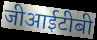
जीआईटीबी